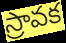
స్రావక